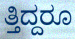
ತ್ತಿದ್ದರೂ